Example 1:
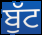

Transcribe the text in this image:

ਬੁੱਟ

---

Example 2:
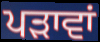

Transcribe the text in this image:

ਪੜਾਵਾਂ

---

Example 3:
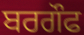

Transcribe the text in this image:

ਬਰਗੌਫ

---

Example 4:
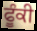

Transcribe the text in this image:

ਫੂੰਕੀ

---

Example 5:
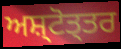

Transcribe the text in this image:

ਅਸ਼੍ਟੋਤ੍ਤਰ